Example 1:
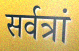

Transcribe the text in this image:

सर्वत्रां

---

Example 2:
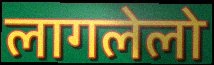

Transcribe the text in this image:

लागलेलो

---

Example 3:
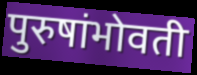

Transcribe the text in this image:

पुरुषांभोवती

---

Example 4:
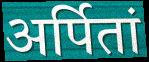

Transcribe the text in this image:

अर्पितां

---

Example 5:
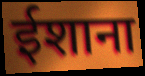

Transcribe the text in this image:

ईशाना